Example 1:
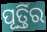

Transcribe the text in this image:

ପୂର୍ତ୍ତିର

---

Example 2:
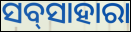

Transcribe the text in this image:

ସବ୍‌ସାହାରା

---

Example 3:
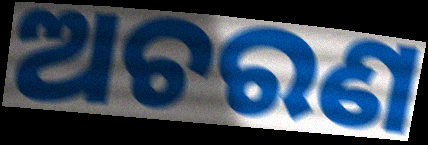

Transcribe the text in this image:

ଅଚରଣ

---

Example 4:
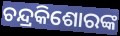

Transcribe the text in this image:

ଚନ୍ଦ୍ରକିଶୋରଙ୍କ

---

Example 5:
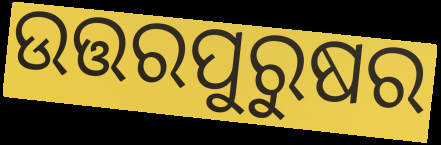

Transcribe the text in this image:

ଉତ୍ତରପୁରୁଷର